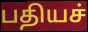
பதியச்